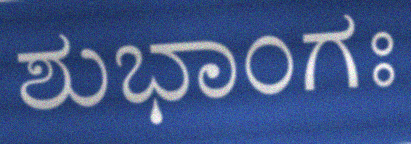
ಶುಭಾಂಗಃ